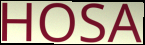
HOSA